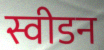
स्वीडन